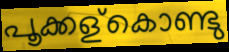
പൂക്കള്കൊണ്ടു